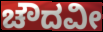
ಚೌದವೀ